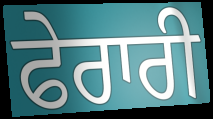
ਫੇਰਾਰੀ